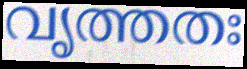
വൃത്തതഃ